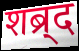
शब्र्द